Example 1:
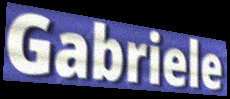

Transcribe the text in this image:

Gabriele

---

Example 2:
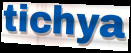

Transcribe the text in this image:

tichya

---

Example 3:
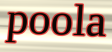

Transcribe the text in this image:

poola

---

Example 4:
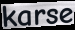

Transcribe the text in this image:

karse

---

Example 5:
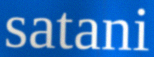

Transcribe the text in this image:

satani